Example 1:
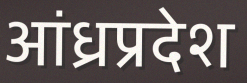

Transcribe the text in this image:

आंध्रप्रदेश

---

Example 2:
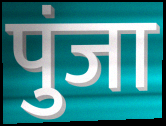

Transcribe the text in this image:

पुंजा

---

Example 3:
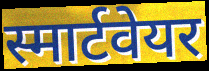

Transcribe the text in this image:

स्मार्टवेयर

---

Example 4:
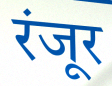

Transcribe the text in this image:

रंजूर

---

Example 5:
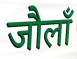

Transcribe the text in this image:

जौलाँ